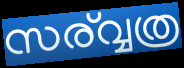
സര്വ്വത്ര